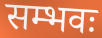
सम्भवः